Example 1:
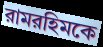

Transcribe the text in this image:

রামরহিমকে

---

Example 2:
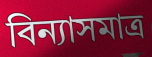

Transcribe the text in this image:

বিন্যাসমাত্র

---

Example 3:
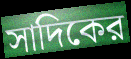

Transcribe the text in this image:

সাদিকের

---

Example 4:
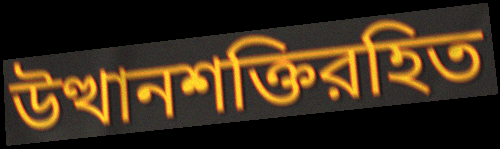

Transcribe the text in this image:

উত্থানশক্তিরহিত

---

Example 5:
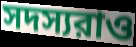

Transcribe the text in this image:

সদস্যরাও